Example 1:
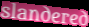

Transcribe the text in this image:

slandered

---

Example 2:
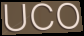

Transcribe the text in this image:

UCO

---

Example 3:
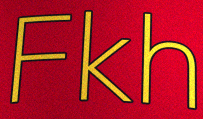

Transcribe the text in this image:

Fkh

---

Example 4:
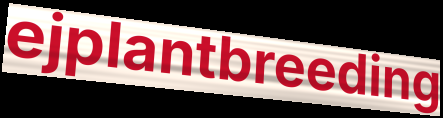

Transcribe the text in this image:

ejplantbreeding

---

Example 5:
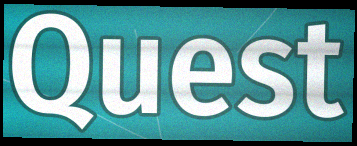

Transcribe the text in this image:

Quest